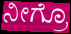
ನೀಗ್ರೊ